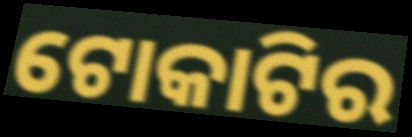
ଟୋକାଟିର